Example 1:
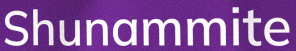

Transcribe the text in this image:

Shunammite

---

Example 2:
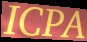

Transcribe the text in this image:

ICPA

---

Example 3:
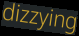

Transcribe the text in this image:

dizzying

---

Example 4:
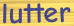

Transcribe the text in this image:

lutter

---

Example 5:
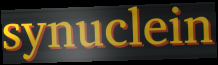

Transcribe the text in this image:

synuclein